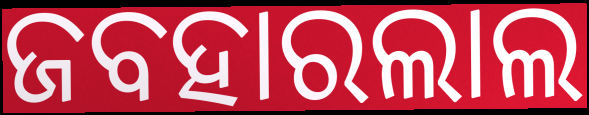
ଜବହାରଲାଲ